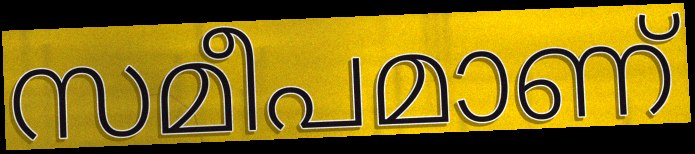
സമീപമാണ്